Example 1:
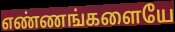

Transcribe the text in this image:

எண்ணங்களையே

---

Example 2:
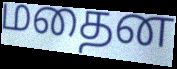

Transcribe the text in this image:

மதைன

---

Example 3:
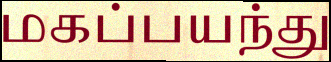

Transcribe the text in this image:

மகப்பயந்து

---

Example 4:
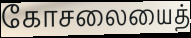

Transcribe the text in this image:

கோசலையைத்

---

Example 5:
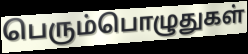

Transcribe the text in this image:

பெரும்பொழுதுகள்